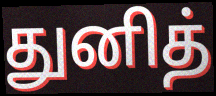
துனித்